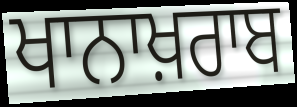
ਖਾਨਾਖ਼ਰਾਬ